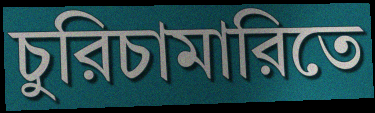
চুরিচামারিতে